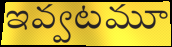
ఇవ్వటమూ